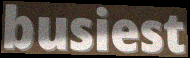
busiest